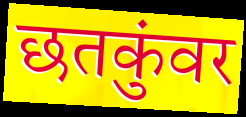
छतकुंवर